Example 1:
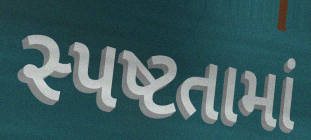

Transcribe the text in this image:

સ્પષ્ટતામાં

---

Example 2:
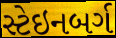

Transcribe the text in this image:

સ્ટેઇનબર્ગ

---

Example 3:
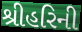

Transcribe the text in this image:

શ્રીહરિની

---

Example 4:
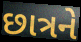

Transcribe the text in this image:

છાત્રને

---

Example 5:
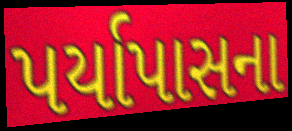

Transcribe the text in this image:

પર્યાપાસના